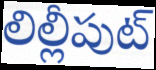
లిల్లీపుట్